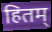
हितम्